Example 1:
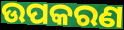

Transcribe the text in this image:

ଉପକରଣ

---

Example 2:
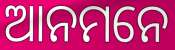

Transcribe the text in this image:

ଆନମନେ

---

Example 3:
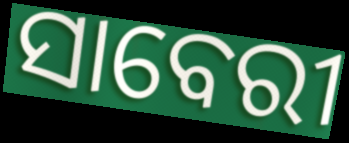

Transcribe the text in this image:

ସାବେରୀ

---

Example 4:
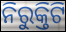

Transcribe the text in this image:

ନିରୁକ୍ତିଟି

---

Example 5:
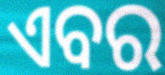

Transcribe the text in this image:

ଏବର